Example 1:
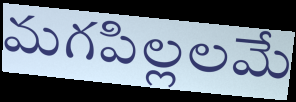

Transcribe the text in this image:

మగపిల్లలమే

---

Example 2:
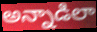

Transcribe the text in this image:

అన్నాడిలా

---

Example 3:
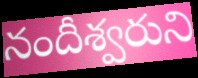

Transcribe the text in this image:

నందీశ్వరుని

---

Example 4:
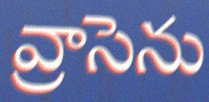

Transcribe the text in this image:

వ్రాసెను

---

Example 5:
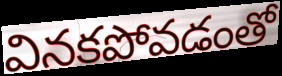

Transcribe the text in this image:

వినకపోవడంతో